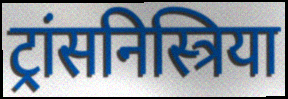
ट्रांसनिस्त्रिया